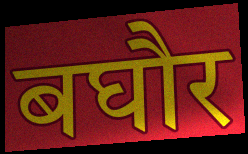
बघौर